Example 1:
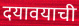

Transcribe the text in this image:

दयावयाची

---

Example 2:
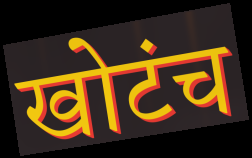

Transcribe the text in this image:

खोटंच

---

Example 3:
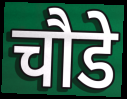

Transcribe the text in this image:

चौडे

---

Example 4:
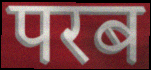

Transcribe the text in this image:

परब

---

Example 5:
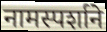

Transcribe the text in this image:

नामस्पर्शाने